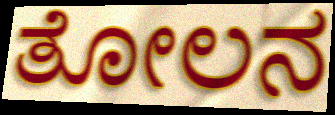
ತೋಲನ